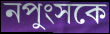
নপুংসকে